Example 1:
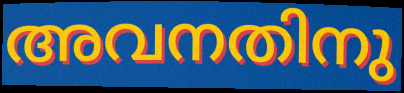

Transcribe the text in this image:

അവനതിനു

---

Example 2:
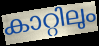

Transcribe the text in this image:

കാറ്റിലും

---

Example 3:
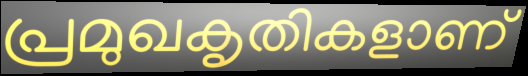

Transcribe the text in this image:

പ്രമുഖകൃതികളാണ്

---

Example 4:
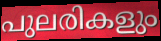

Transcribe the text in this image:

പുലരികളും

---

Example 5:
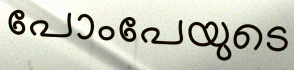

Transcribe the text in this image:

പോംപേയുടെ